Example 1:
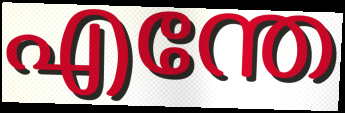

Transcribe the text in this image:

എന്തേ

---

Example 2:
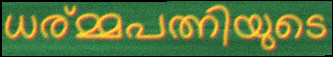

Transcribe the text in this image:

ധര്മ്മപത്നിയുടെ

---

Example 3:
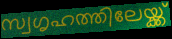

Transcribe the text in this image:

സ്വഗൃഹത്തിലേയ്ക്ക്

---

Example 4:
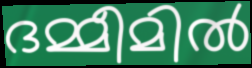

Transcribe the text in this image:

ദമ്മീമിൽ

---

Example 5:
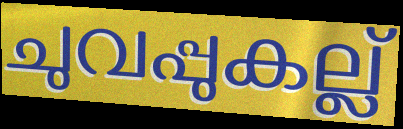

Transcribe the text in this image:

ചുവപ്പുകല്ല്